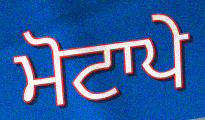
ਮੋਟਾਪੇ